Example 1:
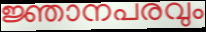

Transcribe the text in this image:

ജ്ഞാനപരവും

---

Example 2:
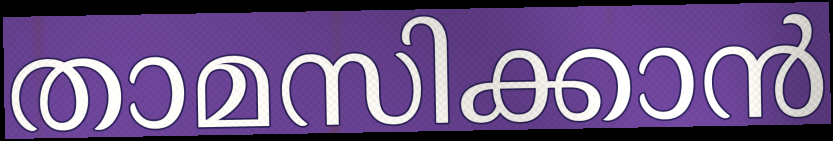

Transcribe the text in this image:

താമസിക്കാൻ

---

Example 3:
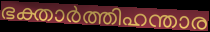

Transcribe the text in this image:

ഭക്താർത്തിഹന്താര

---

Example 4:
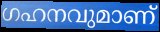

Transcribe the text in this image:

ഗഹനവുമാണ്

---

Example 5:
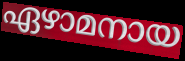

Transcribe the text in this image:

ഏഴാമനായ